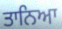
ਤਾਨਿਆ